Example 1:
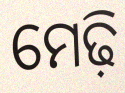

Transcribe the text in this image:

ମେଢ଼ି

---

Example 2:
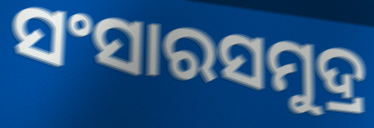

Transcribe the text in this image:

ସଂସାରସମୁଦ୍ର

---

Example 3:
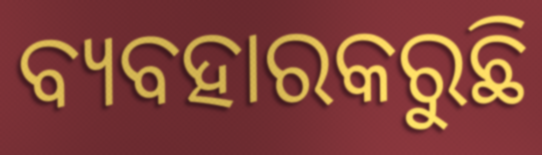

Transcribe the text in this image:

ବ୍ୟବହାରକରୁଛି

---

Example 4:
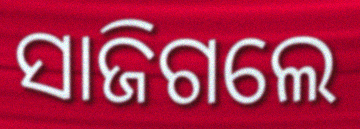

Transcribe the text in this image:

ସାଜିଗଲେ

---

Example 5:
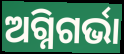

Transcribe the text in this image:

ଅଗ୍ନିଗର୍ଭା